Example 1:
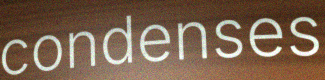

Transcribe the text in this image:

condenses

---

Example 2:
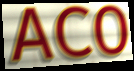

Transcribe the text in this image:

ACO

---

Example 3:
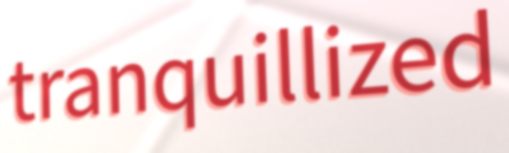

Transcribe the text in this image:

tranquillized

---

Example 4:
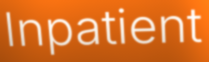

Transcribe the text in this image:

Inpatient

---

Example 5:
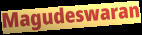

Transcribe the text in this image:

Magudeswaran